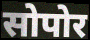
सोपोर